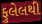
ફુલેલથી